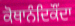
ਕੋਥਾਨੰਦਿਕੌਂਦਾ